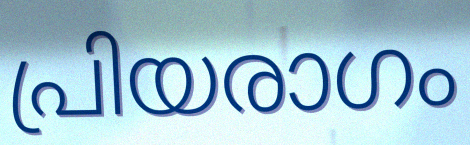
പ്രിയരാഗം